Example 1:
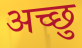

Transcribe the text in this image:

अच्छु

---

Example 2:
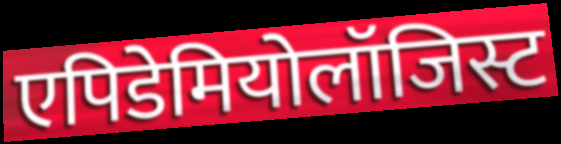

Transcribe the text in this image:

एपिडेमियोलॉजिस्ट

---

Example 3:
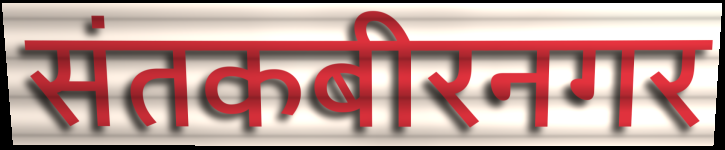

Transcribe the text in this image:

संतकबीरनगर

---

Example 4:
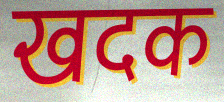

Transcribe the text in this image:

खदक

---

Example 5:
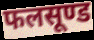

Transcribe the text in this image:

फलसूण्ड